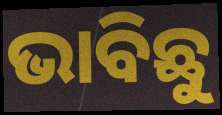
ଭାବିଛୁ